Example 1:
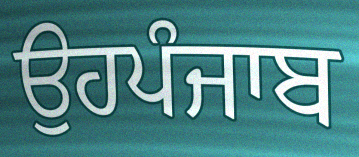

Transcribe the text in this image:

ਉਹਪੰਜਾਬ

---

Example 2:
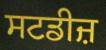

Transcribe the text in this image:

ਸਟਡੀਜ਼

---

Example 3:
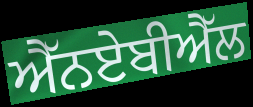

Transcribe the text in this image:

ਐੱਨਏਬੀਐੱਲ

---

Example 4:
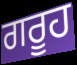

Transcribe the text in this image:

ਗਰੂਹ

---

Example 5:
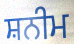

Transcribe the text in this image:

ਸ਼ਨੀਮ